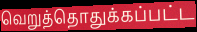
வெறுத்தொதுக்கப்பட்ட